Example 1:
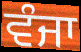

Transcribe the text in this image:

ਵੰਜਾ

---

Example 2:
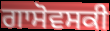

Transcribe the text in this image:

ਗਾਸੋਵਸਕੀ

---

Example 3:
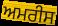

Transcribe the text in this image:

ਅਮਰੀਸ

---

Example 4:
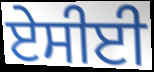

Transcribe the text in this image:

ਏਸੀਈ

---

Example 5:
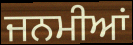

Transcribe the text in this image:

ਜਨਮੀਆਂ